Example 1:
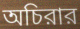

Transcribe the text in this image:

অচিরার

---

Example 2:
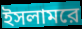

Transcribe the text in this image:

ইসলামরে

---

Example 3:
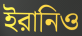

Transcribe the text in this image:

ইরানিও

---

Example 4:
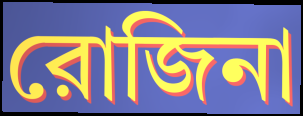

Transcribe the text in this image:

রোজিনা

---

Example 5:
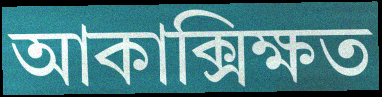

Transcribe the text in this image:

আকাক্সিক্ষত